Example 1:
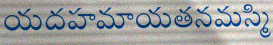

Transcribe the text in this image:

యదహమాయతనమస్మి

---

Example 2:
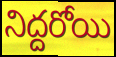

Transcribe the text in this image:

నిద్దరోయి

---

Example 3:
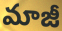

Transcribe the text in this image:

మాజీ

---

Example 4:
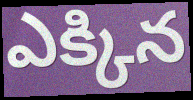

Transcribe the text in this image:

ఎక్కిన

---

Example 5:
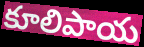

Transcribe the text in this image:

కూలిపాయ